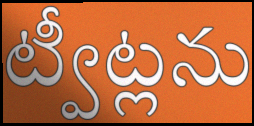
ట్వీట్లను